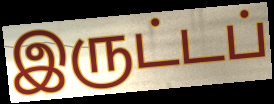
இருட்டப்